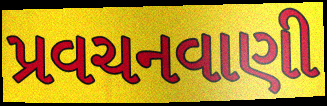
પ્રવચનવાણી